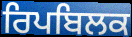
ਰਿਪਬਿਲਕ